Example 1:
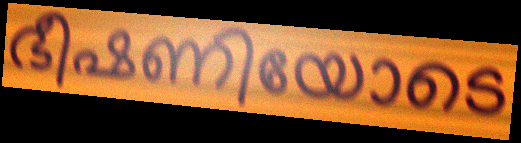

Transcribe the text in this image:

ഭീഷണിയോടെ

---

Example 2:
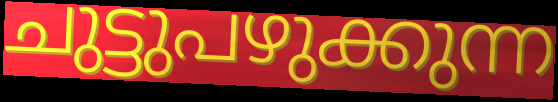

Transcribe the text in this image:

ചുട്ടുപഴുക്കുന്ന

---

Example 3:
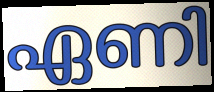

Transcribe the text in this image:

ഏണി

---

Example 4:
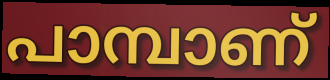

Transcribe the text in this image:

പാമ്പാണ്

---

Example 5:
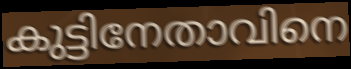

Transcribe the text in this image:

കുട്ടിനേതാവിനെ